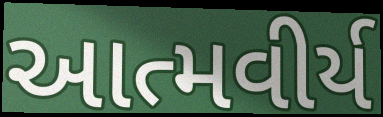
આત્મવીર્ય